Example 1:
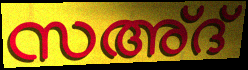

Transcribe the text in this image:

സഅ്ദ്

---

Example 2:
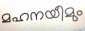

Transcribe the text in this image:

മഹനയീമും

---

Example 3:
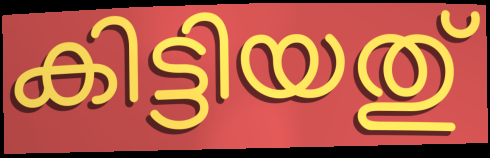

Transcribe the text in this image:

കിട്ടിയതു്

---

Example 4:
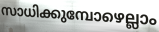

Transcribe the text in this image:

സാധിക്കുമ്പോഴെല്ലാം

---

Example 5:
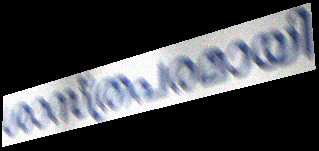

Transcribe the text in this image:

ശാസ്ത്രപരമായി